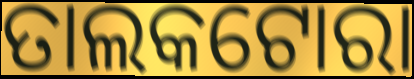
ତାଲକଟୋରା